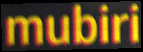
mubiri